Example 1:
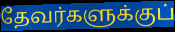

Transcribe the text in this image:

தேவர்களுக்குப்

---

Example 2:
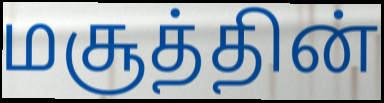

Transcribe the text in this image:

மசூத்தின்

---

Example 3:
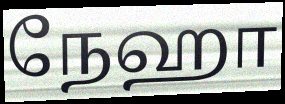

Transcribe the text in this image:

நேஹா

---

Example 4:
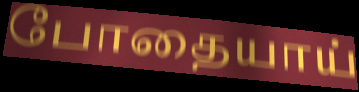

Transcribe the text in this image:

போதையாய்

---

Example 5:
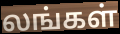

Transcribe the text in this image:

லங்கள்